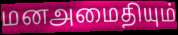
மனஅமைதியும்